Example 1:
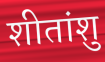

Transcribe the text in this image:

शीतांशु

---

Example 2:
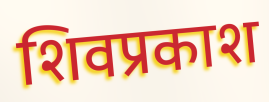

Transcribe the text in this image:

शिवप्रकाश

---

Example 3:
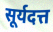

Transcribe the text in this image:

सूर्यदत्त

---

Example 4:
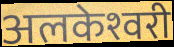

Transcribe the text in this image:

अलकेश्वरी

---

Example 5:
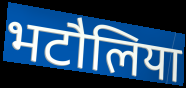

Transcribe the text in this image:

भटौलिया